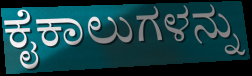
ಕೈಕಾಲುಗಳನ್ನು